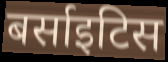
बर्साइटिस